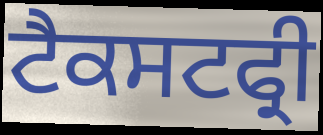
ਟੈਕਸਟਫ੍ਰੀ